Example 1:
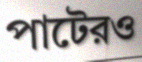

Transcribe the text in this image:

পাটেরও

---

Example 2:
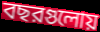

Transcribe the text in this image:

বছরগুলোয়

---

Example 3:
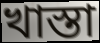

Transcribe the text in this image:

খাস্তা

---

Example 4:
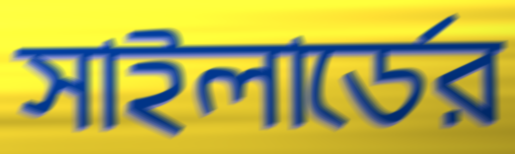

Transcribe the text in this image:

সাইলার্ডের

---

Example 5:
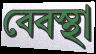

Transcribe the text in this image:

বেবস্থা